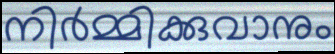
നിർമ്മിക്കുവാനും